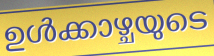
ഉൾക്കാഴ്ചയുടെ